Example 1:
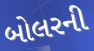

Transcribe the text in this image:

બોલરની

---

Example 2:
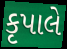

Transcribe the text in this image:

કૃપાલે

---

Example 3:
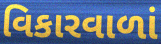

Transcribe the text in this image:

વિકારવાળાં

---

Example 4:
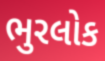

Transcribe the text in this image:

ભુરલોક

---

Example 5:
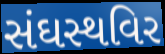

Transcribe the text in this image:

સંઘસ્થવિર